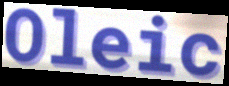
Oleic